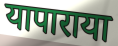
यापाराया